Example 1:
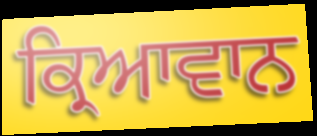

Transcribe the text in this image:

ਕ੍ਰਿਆਵਾਨ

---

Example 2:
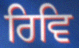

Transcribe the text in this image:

ਰਿਵਿ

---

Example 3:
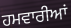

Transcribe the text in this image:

ਹਮਵਾਰੀਆਂ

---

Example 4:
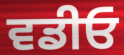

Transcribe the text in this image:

ਵਡੀਓ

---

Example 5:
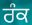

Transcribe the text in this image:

ਰੰਕ